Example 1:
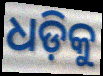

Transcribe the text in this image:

ଧଡ଼ିକୁ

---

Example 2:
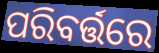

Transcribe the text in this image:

ପରିବର୍ତ୍ତରେ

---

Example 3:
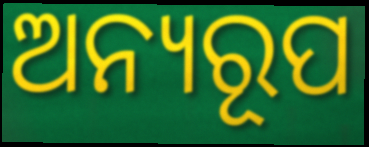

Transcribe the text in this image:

ଅନ୍ୟରୂପ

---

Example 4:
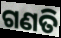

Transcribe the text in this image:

ଗଣତି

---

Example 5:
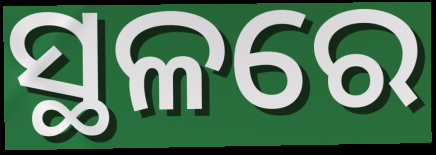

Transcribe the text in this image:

ସ୍ଥଳରେ